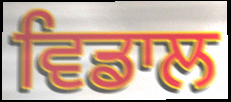
ਵਿਡਾਲ